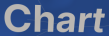
Chart